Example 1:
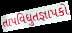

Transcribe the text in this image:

તાપવિદ્યુતજ્ઞાપકો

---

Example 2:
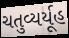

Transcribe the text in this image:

ચતુવ્યર્યૂહ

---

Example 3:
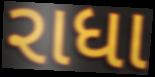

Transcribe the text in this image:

રાધા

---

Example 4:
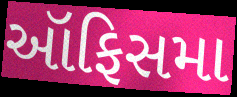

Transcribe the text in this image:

ઑફિસમા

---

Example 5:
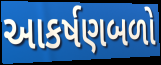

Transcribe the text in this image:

આકર્ષણબળો